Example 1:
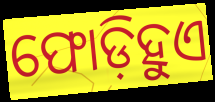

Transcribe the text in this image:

ଫୋଡ଼ିହୁଏ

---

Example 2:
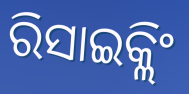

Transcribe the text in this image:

ରିସାଇକ୍ଲିଂ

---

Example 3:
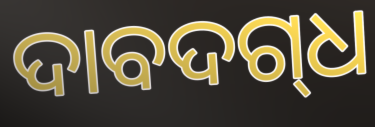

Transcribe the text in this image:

ଦାବଦଗ୍‍ଧ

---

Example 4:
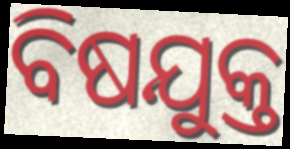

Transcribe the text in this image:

ବିଷଯୁକ୍ତ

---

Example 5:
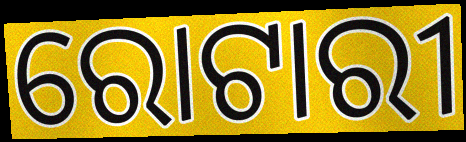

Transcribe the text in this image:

ରୋଟାରୀ